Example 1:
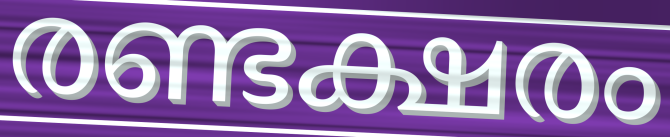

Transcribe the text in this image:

രണ്ടക്ഷരം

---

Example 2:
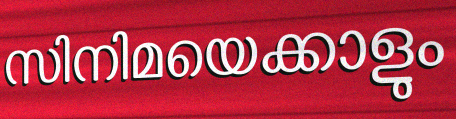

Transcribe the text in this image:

സിനിമയെക്കാളും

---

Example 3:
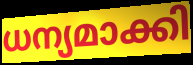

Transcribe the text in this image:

ധന്യമാക്കി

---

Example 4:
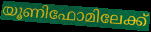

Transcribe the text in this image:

യൂണിഫോമിലേക്ക്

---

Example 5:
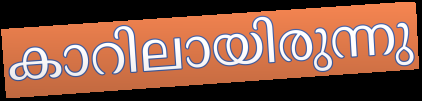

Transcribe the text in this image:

കാറിലായിരുന്നു